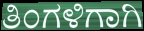
ತಿಂಗಳಿಗಾಗಿ